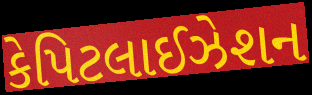
કેપિટલાઈઝેશન